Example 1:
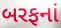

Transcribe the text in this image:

બરફનાં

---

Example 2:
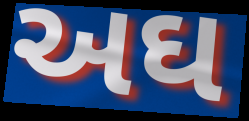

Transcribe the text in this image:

અઘ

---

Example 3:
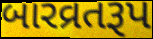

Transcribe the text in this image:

બારવ્રતરૂપ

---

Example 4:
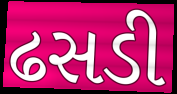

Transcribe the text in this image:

ઢસડી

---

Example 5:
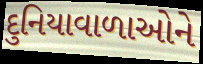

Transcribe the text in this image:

દુનિયાવાળાઓને